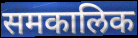
समकालिक